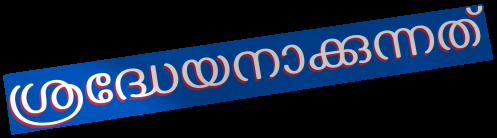
ശ്രദ്ധേയനാക്കുന്നത്